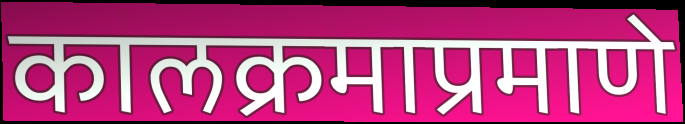
कालक्रमाप्रमाणे